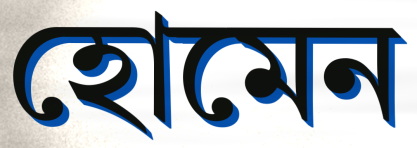
হোমেন